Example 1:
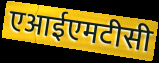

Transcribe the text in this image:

एआईएमटीसी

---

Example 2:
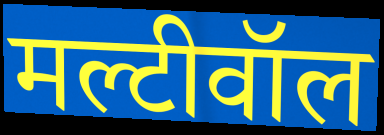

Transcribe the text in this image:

मल्टीवॉल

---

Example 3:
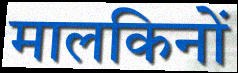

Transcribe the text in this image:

मालकिनों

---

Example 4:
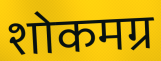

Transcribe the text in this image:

शोकमग्र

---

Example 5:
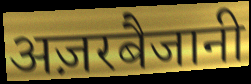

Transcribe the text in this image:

अज़रबैजानी